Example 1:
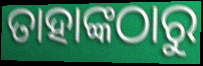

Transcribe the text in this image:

ତାହାଙ୍କଠାରୁ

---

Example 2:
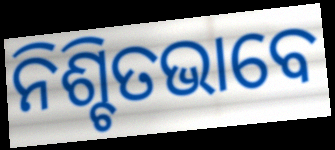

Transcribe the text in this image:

ନିଶ୍ଚିତଭାବେ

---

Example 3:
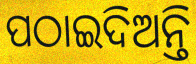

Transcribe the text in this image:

ପଠାଇଦିଅନ୍ତି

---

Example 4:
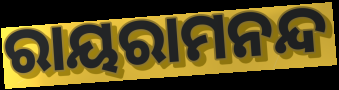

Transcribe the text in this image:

ରାୟରାମନନ୍ଦ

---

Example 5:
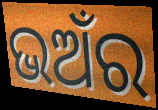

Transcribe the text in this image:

ଭଅଁର